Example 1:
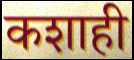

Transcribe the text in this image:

कशाही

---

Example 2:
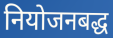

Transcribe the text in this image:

नियोजनबद्ध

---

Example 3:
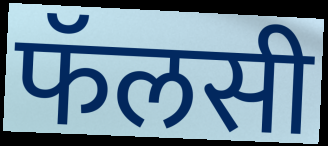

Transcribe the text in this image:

फॅलसी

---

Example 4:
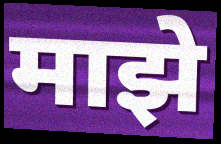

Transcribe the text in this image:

माझे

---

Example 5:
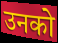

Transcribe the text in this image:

उनको